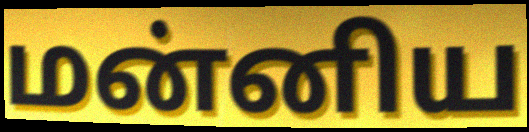
மன்னிய